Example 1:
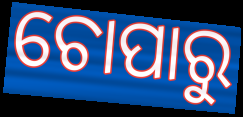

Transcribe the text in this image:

ଚୋପାରୁ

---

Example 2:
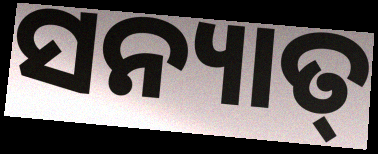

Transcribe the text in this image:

ସନ୍ୟାତ୍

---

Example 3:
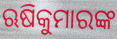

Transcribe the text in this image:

ଋଷିକୁମାରଙ୍କ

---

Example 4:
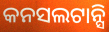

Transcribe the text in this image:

କନସଲଟାନ୍ସି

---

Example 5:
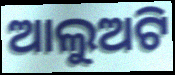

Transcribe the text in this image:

ଆଲୁଅଟି